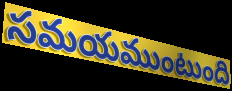
సమయముంటుంది